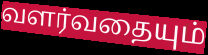
வளர்வதையும்